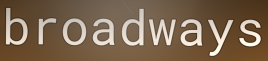
broadways